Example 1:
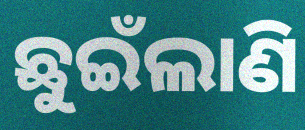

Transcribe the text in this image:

ଛୁଇଁଲାଣି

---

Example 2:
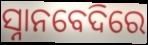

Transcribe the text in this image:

ସ୍ନାନବେଦିରେ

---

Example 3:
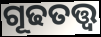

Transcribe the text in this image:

ଗୂଢତତ୍ତ୍ୱ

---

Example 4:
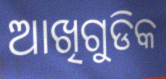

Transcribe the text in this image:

ଆଖିଗୁଡିକ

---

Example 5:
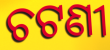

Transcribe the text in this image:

ଚଟଣୀ